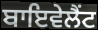
ਬਾਇਵੇਲੈਂਟ